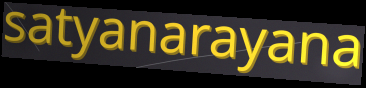
satyanarayana